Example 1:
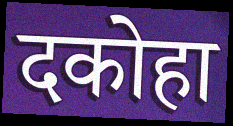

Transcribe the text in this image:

दकोहा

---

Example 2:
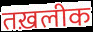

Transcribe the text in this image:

तख़लीक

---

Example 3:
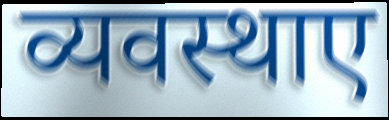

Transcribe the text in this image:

व्यवस्थाए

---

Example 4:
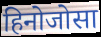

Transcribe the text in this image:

हिनोजोसा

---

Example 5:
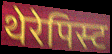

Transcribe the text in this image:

थेरेपिस्ट